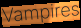
Vampires